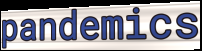
pandemics